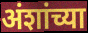
अंशांच्या